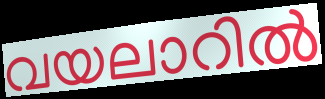
വയലാറിൽ